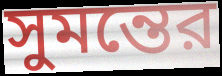
সুমন্তের